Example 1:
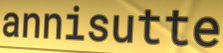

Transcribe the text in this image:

annisutte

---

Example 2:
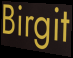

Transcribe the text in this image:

Birgit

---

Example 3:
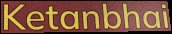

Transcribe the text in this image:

Ketanbhai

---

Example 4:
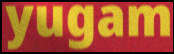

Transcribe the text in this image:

yugam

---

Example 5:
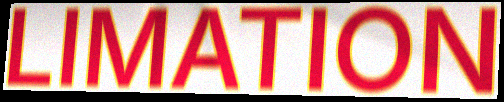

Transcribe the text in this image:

LIMATION